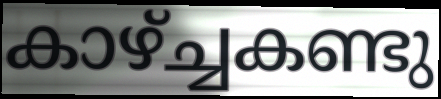
കാഴ്ച്ചകണ്ടു